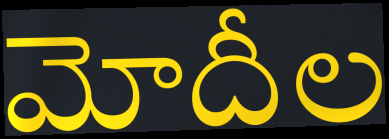
మోదీల